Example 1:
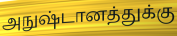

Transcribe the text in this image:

அநுஷ்டானத்துக்கு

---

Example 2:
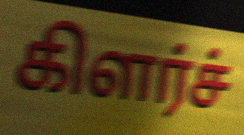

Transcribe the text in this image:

கிளர்ச்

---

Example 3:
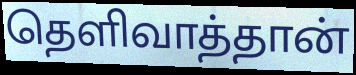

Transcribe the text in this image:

தெளிவாத்தான்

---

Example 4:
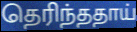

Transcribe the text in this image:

தெரிந்ததாய்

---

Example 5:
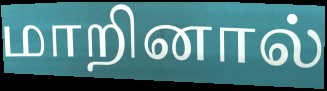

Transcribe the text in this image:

மாறினால்